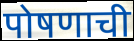
पोषणाची